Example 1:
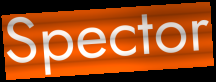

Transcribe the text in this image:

Spector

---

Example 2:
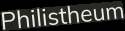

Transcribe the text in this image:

Philistheum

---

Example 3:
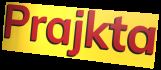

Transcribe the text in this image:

Prajkta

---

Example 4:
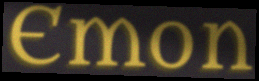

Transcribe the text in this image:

Emon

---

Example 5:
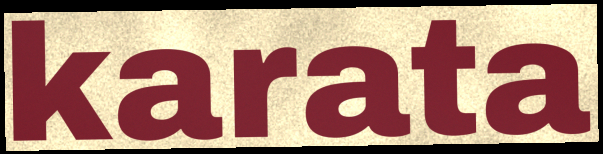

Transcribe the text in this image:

karata